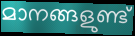
മാനങ്ങളുണ്ട്